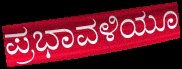
ಪ್ರಭಾವಳಿಯೂ